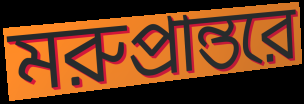
মরুপ্রান্তরে